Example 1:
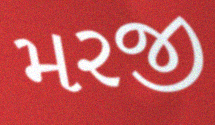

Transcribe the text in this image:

મરજી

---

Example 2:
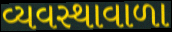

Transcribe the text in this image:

વ્યવસ્થાવાળા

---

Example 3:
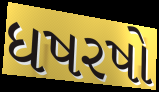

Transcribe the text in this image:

ધષરષો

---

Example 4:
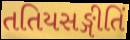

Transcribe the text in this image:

તતિયસઙ્ગીતિં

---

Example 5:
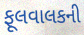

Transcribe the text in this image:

ફૂલવાલકની